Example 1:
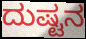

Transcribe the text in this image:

ದುಷ್ಟನ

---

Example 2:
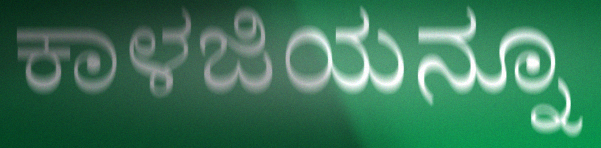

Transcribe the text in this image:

ಕಾಳಜಿಯನ್ನೂ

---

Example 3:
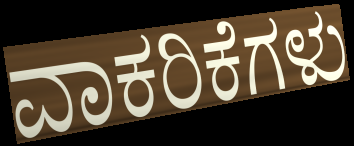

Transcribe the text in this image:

ವಾಕರಿಕೆಗಳು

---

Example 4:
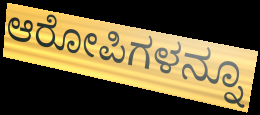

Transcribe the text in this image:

ಆರೋಪಿಗಳನ್ನೂ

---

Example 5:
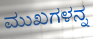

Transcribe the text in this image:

ಮುಖಗಳನ್ನ